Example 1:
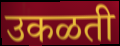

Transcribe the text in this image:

उकळती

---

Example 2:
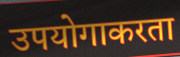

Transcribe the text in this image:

उपयोगाकरता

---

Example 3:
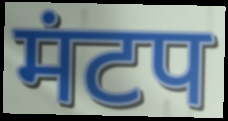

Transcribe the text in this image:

मंटप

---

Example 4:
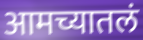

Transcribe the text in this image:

आमच्यातलं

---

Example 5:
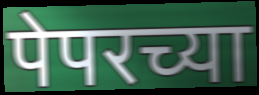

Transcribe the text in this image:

पेपरच्या